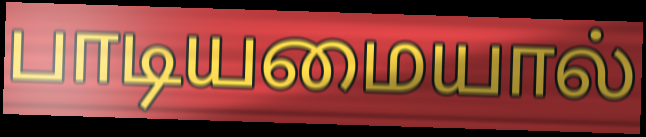
பாடியமையால்